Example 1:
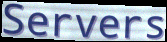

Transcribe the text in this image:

Servers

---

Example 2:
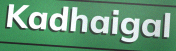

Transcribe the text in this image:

Kadhaigal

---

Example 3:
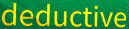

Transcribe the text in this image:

deductive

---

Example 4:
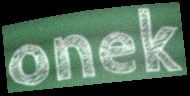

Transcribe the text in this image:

onek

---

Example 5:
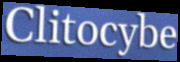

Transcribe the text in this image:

Clitocybe